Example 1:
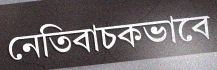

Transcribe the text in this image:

নেতিবাচকভাবে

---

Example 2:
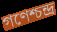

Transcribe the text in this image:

গণেশ্চন্দ্র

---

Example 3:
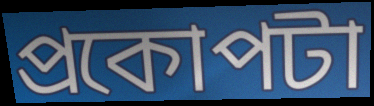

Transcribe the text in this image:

প্রকোপটা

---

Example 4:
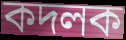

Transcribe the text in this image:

কদলক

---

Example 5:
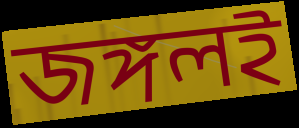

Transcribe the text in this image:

জঙ্গলই